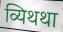
व्यिथथा